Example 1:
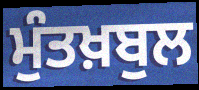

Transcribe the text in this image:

ਮੁੰਤਖ਼ਬੁਲ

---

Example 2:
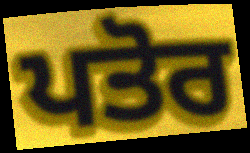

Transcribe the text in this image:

ਪਤੋਰ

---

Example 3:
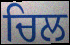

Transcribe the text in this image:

ਚਿਲ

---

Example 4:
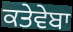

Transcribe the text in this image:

ਕਤੇਵੇਬਾ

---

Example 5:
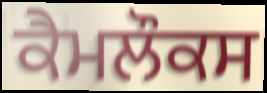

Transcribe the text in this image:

ਕੈਮਲੌਕਸ